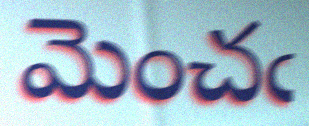
మెంచఁ